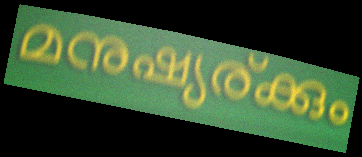
മനുഷ്യര്ക്കും